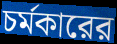
চর্মকারের